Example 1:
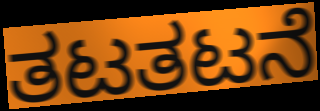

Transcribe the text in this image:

ತಟತಟನೆ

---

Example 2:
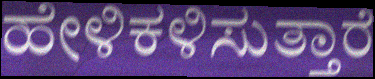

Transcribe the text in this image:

ಹೇಳಿಕಳಿಸುತ್ತಾರೆ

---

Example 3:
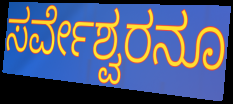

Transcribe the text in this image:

ಸರ್ವೇಶ್ವರನೂ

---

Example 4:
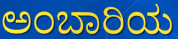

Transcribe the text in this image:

ಅಂಬಾರಿಯ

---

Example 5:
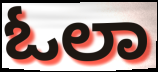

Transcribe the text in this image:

ಓಲಾ